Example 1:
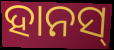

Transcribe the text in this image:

ହାନସ୍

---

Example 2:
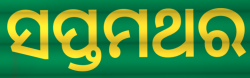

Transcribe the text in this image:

ସପ୍ତମଥର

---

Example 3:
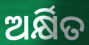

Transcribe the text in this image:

ଅର୍କ୍ଷିତ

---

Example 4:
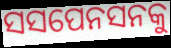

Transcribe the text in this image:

ସସପେନସନକୁ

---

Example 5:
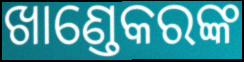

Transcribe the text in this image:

ଖାଣ୍ଡେକରଙ୍କ